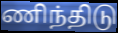
ணிந்திடு